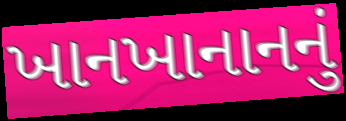
ખાનખાનાનનું